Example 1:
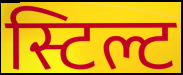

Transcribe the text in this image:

स्टिल्ट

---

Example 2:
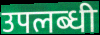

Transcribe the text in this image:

उपलब्धी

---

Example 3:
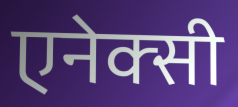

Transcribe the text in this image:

एनेक्‍सी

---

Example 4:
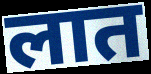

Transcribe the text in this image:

लात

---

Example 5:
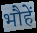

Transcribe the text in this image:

भौहें